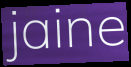
jaine